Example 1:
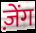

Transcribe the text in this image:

ज़ेंग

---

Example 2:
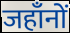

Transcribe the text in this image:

जहाँनों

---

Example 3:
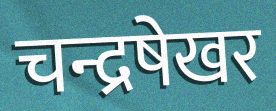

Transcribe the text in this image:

चन्द्रषेखर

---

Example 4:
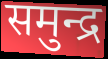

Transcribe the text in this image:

समुन्द्र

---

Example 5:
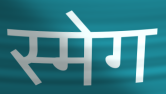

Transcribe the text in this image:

स्मेग